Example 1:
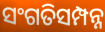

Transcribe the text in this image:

ସଂଗତିସମ୍ପନ୍ନ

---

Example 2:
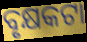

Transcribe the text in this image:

ବୃକ୍ଷକଟା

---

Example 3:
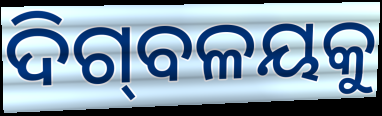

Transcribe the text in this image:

ଦିଗ୍‌ବଳୟକୁ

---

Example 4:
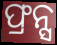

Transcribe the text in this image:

ଫ୍ରନ୍ସ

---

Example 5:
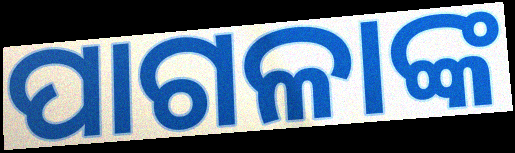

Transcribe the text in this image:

ପାଗଳାଙ୍କ